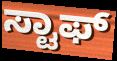
ಸ್ಟಾಫ್